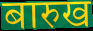
बारुख